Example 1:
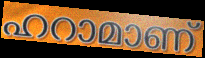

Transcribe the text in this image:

ഹറാമാണ്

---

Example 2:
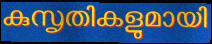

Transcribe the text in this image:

കുസൃതികളുമായി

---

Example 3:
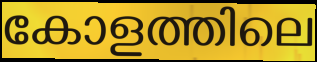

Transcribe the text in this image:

കോളത്തിലെ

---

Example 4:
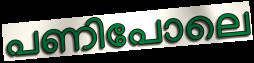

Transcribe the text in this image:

പണിപോലെ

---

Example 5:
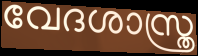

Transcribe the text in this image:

വേദശാസ്ത്ര